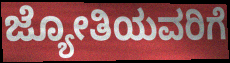
ಜ್ಯೋತಿಯವರಿಗೆ